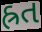
હ્રત